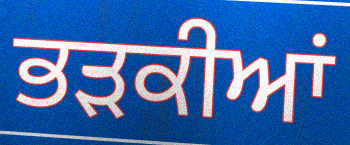
ਭੜਕੀਆਂ